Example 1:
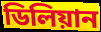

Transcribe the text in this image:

ডিলিয়ান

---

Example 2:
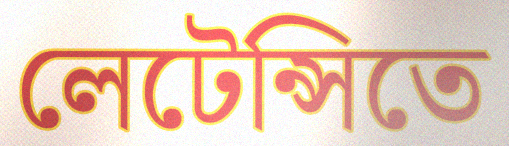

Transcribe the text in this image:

লেটেন্সিতে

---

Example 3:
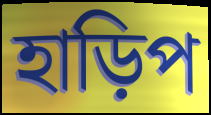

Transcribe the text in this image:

হাড়িপ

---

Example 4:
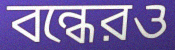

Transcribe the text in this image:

বন্ধেরও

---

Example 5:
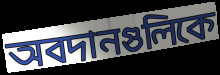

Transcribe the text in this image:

অবদানগুলিকে